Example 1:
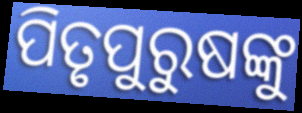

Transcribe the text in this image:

ପିତୃପୁରୁଷଙ୍କୁ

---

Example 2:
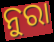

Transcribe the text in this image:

ନୁରା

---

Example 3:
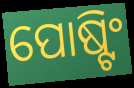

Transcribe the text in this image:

ପୋଷ୍ଟିଂ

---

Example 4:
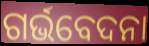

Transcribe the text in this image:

ଗର୍ଭବେଦନା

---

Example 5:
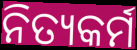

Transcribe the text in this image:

ନିତ୍ଯକର୍ମ